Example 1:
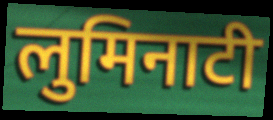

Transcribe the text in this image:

लुमिनाटी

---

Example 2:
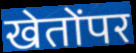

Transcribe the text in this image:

खेतोंपर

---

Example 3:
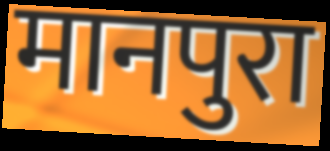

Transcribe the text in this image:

मानपुरा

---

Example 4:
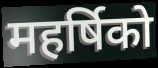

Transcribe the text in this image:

महर्षिको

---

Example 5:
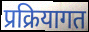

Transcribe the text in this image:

प्रक्रियागत